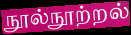
நூல்நூற்றல்